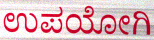
ಉಪಯೋಗಿ